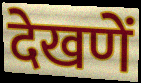
देखणें